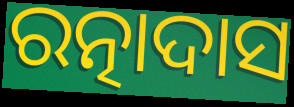
ରତ୍ନାଦାସ